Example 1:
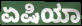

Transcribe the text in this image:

ಏಷಿಯಾ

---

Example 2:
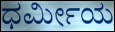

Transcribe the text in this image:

ಧರ್ಮೀಯ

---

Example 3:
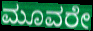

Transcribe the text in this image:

ಮೂವರೇ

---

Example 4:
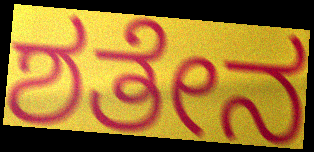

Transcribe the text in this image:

ಶತೇನ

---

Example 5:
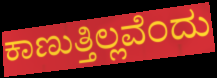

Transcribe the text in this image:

ಕಾಣುತ್ತಿಲ್ಲವೆಂದು